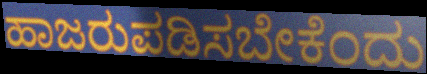
ಹಾಜರುಪಡಿಸಬೇಕೆಂದು